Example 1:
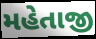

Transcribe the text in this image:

મહેતાજી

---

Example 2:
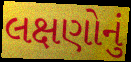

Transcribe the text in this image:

લક્ષણોનું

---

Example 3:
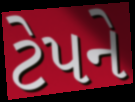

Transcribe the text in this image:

ટેપને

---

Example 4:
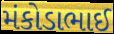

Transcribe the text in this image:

મંકોડાભાઈ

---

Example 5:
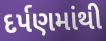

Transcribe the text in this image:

દર્પણમાંથી